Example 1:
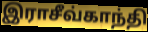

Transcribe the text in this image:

இராசீவ்காந்தி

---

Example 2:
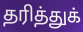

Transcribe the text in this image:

தரித்துக்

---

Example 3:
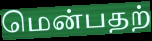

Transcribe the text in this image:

மென்பதற்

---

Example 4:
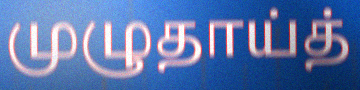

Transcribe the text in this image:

முழுதாய்த்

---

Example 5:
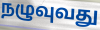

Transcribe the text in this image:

நழுவுவது